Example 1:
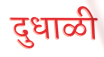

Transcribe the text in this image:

दुधाळी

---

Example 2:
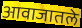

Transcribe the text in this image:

आवाजातले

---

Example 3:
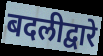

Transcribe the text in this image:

बदलीद्वारे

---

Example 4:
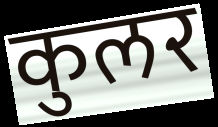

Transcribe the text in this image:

कुलर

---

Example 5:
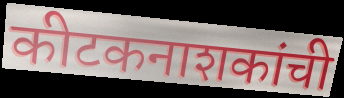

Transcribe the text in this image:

कीटकनाशकांची